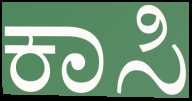
ಕಾಸಿ